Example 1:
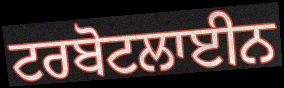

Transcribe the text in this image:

ਟਰਬੋਟਲਾਈਨ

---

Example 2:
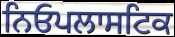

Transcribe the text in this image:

ਨਿਓਪਲਾਸਟਿਕ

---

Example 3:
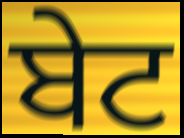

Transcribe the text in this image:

ਬੇਟ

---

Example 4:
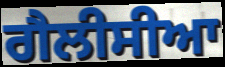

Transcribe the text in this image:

ਗੈਲੀਸੀਆ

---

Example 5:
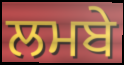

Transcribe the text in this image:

ਲਮਬੇ